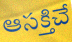
ఆసక్తిచే